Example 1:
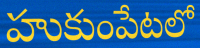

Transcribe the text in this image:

హుకుంపేటలో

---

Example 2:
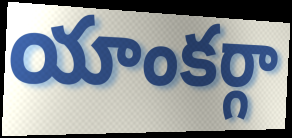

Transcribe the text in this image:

యాంకర్గా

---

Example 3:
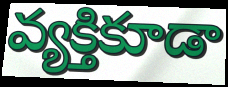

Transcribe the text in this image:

వ్యక్తికూడా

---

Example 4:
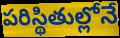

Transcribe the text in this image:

పరిస్థితుల్లోనే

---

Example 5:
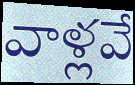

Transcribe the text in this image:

వాళ్లవే